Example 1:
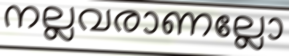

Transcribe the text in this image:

നല്ലവരാണല്ലോ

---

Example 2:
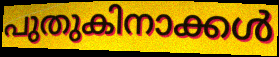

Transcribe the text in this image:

പുതുകിനാക്കൾ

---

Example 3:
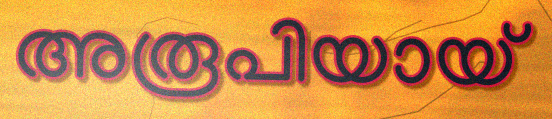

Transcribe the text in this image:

അരൂപിയായ്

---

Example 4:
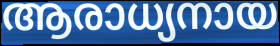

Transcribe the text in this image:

ആരാധ്യനായ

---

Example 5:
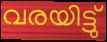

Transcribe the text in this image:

വരയിട്ടു്